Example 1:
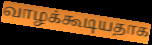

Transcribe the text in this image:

வாழக்கூடியதாக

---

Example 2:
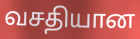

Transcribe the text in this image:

வசதியான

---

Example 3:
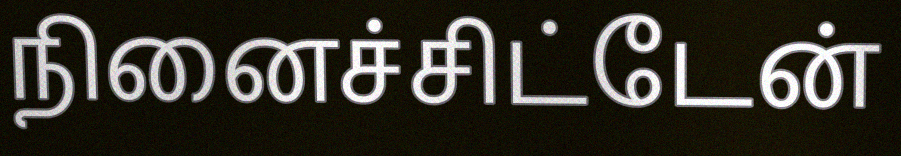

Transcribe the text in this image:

நினைச்சிட்டேன்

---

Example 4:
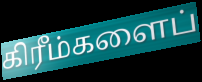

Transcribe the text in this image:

கிரீம்களைப்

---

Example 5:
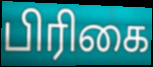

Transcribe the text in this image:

பிரிகை